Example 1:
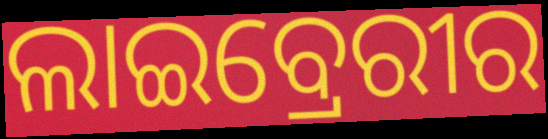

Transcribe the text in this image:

ଲାଇବ୍ରେରୀର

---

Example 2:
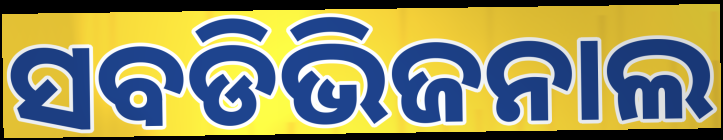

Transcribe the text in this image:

ସବଡିଭିଜନାଲ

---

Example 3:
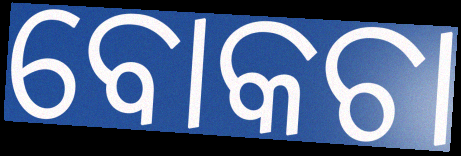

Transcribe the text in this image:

ବୋକଚା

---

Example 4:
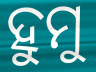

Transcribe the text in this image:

ହୁମୁ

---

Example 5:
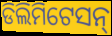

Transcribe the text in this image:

ଡିଲିମିଟେସନ୍